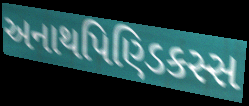
અનાથપિણ્ડિકસ્સ